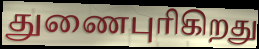
துணைபுரிகிறது